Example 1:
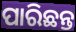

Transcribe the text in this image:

ପାରିଛନ୍ତ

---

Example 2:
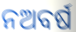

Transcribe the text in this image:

ନଅବର୍ଷ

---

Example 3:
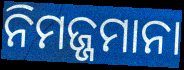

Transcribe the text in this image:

ନିମଜ୍ଜମାନା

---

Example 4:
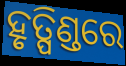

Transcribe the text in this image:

ହୃତ୍ପିଣ୍ଡରେ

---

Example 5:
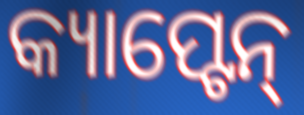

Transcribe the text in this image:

କ୍ୟାପ୍ଟେନ୍